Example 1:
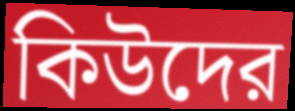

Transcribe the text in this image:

কিউদের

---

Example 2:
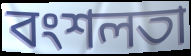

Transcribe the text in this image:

বংশলতা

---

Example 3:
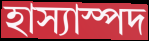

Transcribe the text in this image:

হাস্যাস্পদ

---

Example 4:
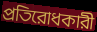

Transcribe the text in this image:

প্রতিরোধকারী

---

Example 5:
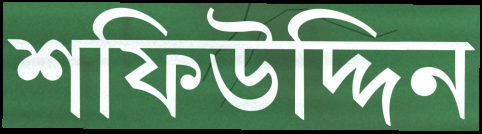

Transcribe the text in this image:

শফিউদ্দিন